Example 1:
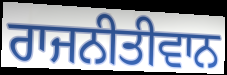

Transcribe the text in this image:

ਰਾਜਨੀਤੀਵਾਨ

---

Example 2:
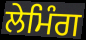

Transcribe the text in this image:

ਲੇਮਿੰਗ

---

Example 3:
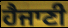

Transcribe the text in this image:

ਹੈਜਾਣੀ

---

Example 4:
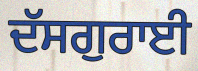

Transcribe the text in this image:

ਦੱਸਗੁਰਾਈ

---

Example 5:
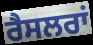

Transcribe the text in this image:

ਰੈਸਲਰਾਂ